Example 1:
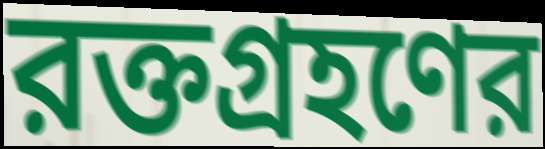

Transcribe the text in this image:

রক্তগ্রহণের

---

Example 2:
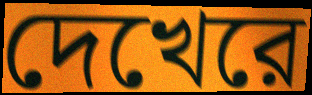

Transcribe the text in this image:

দেখেরে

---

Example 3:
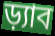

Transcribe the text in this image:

ড়্যাব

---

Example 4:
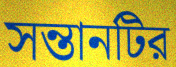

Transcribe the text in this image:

সন্তানটির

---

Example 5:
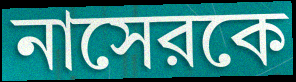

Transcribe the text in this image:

নাসেরকে